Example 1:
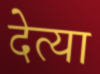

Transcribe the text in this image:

देत्या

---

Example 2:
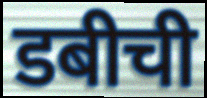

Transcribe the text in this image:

डबीची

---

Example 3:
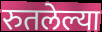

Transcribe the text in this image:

रुतलेल्या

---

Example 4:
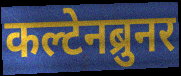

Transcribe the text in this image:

कल्टेनब्रुनर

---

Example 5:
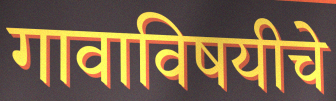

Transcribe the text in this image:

गावाविषयीचे